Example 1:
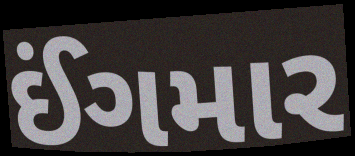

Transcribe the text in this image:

ઈંગમાર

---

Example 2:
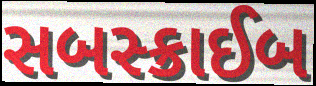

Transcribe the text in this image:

સબસ્ક્રાઈબ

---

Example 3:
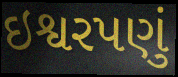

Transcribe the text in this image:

ઇશ્વરપણું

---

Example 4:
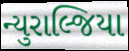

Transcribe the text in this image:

ન્યુરાલ્જિયા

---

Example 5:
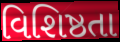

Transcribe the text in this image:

વિશિષ્ઠતા